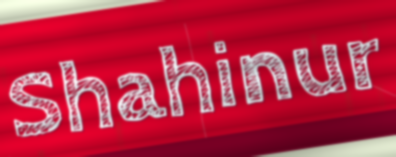
Shahinur